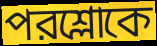
পরশ্লোকে